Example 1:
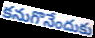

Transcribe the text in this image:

కనుగొనేందుకు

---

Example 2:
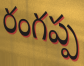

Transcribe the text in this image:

రంగప్ప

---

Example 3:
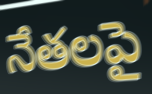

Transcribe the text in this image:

నేతలపై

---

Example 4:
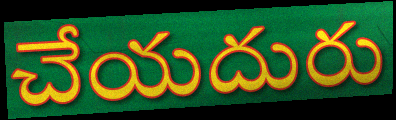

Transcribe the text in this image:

చేయదురు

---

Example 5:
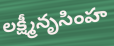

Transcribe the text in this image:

లక్ష్మీనృసింహ